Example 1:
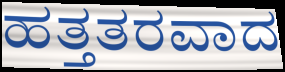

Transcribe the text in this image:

ಹತ್ತತರವಾದ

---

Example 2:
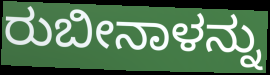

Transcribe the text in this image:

ರುಬೀನಾಳನ್ನು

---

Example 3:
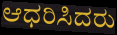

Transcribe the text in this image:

ಆಧರಿಸಿದರು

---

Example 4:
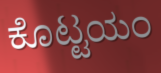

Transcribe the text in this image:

ಕೊಟ್ಟಯಂ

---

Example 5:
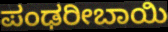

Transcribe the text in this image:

ಪಂಢರೀಬಾಯಿ